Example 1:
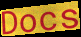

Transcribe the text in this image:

Docs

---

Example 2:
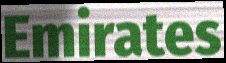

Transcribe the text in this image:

Emirates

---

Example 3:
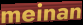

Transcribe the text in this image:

meinan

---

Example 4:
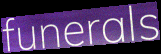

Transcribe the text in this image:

funerals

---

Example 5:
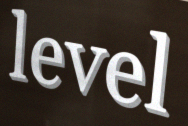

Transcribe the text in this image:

level